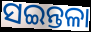
ସଇନ୍ତଳା